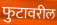
फुटावरील